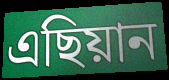
এছিয়ান